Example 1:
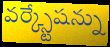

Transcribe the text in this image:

వర్క్స్టేషన్ను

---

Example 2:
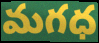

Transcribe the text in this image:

మగధ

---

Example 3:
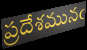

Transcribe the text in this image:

ప్రదేశమునఁ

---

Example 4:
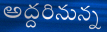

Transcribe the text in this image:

అద్దరినున్న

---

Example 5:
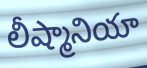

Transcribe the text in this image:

లీష్మానియా